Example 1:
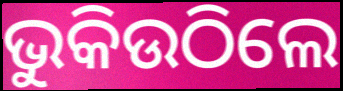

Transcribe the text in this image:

ଭୁକିଉଠିଲେ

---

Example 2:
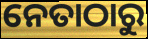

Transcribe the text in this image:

ନେତାଠାରୁ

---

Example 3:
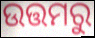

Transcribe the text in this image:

ଉତ୍ତମରୁ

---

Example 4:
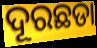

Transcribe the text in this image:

ଦୂରଛଡା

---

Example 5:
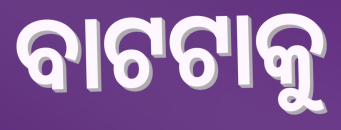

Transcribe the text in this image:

ବାଟଟାକୁ